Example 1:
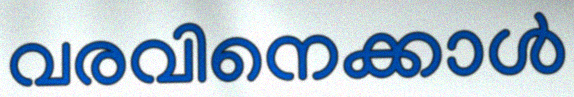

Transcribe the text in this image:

വരവിനെക്കാൾ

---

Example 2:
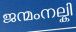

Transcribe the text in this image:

ജന്മംനല്കി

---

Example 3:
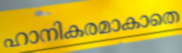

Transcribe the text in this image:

ഹാനികരമാകാതെ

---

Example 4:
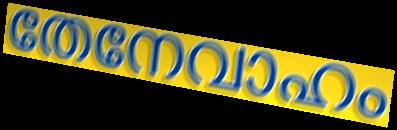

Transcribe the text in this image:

തേനേവാഹം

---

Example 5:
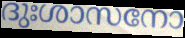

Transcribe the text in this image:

ദുഃശാസനോ